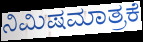
ನಿಮಿಷಮಾತ್ರಕೆ